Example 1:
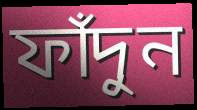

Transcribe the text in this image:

ফাঁদুন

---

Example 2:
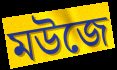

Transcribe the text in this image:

মউজে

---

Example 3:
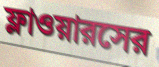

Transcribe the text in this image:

ফ্লাওয়ারসের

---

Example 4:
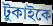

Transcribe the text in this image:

টুকাইকে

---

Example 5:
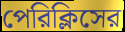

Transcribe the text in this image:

পেরিক্লিসের